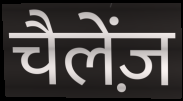
चैलेंज़